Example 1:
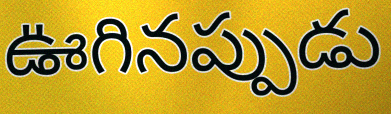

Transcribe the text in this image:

ఊగినప్పుడు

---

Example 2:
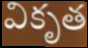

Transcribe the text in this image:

వికృత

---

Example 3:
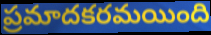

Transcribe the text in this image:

ప్రమాదకరమయింది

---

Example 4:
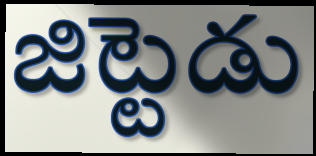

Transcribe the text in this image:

జిట్టెడు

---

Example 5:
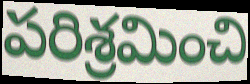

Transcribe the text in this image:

పరిశ్రమించి